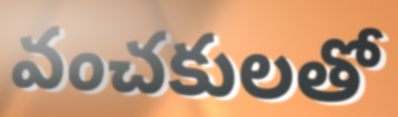
వంచకులతో